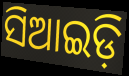
ସିଆଇଡ଼ି